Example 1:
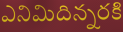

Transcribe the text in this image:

ఎనిమిదిన్నరకి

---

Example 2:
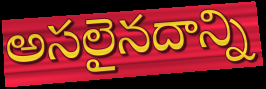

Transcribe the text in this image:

అసలైనదాన్ని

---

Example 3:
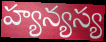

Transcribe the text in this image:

హ్యన్యస్య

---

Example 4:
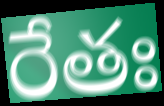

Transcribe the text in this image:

రేతః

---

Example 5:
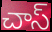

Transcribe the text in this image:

చాస్